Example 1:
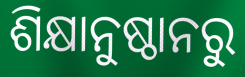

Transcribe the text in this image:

ଶିକ୍ଷାନୁଷ୍ଠାନରୁ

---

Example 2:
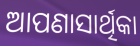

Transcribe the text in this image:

ଆପଣାସାର୍ଥିକା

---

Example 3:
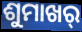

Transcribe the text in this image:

ଶୁମାଖର୍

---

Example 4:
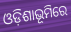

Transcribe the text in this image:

ଓଡ଼ିଶାଭୂମିରେ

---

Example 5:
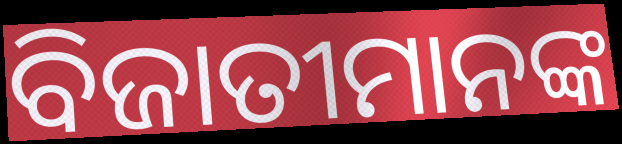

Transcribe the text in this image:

ବିଜାତୀମାନଙ୍କ